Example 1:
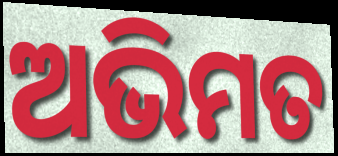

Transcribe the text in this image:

ଅଭିମତ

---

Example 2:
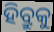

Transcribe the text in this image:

ହିବ୍ରୁକୁ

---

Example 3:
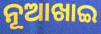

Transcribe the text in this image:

ନୂଆଖାଇ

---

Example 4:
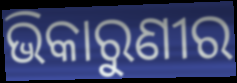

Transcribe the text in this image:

ଭିକାରୁଣୀର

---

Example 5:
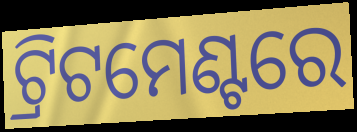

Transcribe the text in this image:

ଟ୍ରିଟମେଣ୍ଟରେ